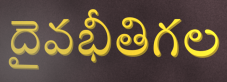
దైవభీతిగల